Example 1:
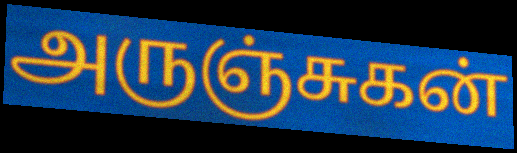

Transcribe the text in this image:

அருஞ்சுகன்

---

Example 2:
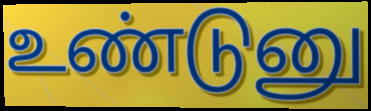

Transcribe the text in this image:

உண்டுனு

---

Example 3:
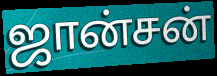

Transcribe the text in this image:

ஜான்சன்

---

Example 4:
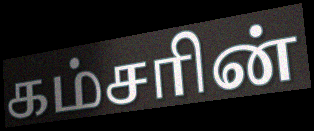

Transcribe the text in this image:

கம்சரின்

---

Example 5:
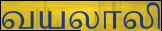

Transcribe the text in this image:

வயலாலி